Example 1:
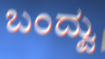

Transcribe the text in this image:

ಬಂದ್ವು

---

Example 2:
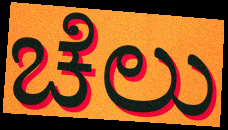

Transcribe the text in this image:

ಚೆಲು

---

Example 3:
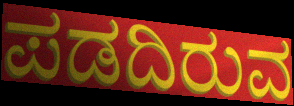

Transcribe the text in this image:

ಪಡದಿರುವ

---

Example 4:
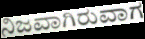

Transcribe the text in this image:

ನಿಜವಾಗಿರುವಾಗ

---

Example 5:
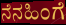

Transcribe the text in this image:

ನೆನಹಿಂಗೆ